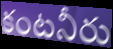
కంటనీరు